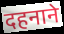
दहनाने